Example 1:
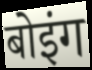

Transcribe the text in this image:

बोइंग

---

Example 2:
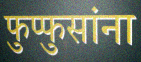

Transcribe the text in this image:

फुप्फुसांना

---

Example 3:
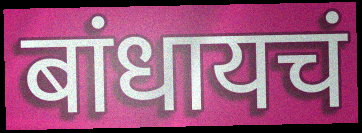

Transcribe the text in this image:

बांधायचं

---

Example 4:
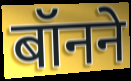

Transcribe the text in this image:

बॉनने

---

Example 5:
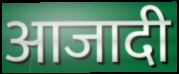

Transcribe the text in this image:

आजादी